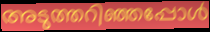
അടുത്തറിഞ്ഞപ്പോൾ